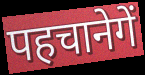
पहचानेगें